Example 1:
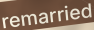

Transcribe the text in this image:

remarried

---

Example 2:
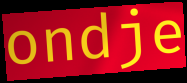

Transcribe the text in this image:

ondje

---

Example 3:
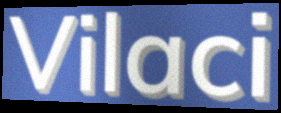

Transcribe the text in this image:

Vilaci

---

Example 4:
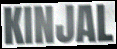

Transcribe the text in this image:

KINJAL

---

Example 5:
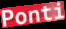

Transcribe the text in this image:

Ponti